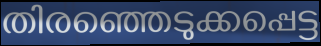
തിരഞ്ഞെടുക്കപ്പെട്ട